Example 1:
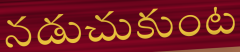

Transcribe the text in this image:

నడుచుకుంట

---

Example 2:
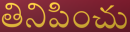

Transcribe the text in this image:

తినిపించు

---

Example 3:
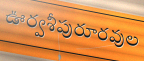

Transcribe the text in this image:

ఊర్వశీపురూరవుల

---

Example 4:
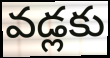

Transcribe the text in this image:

వడ్లకు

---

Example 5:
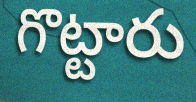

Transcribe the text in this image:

గొట్టారు